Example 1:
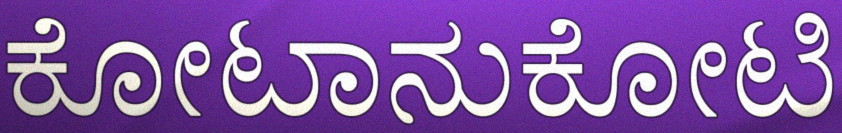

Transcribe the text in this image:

ಕೋಟಾನುಕೋಟಿ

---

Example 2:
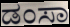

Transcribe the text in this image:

ಡಂಸಾ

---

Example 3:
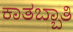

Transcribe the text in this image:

ಕಾತಬ್ಬಾತಿ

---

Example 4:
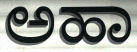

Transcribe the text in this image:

ಅಹಾ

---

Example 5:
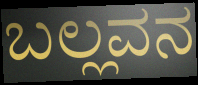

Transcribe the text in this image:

ಬಲ್ಲವನ